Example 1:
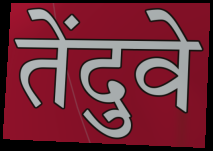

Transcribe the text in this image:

तेंदुवे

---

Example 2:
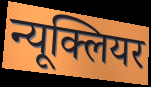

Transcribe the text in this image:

न्यूक्लियर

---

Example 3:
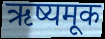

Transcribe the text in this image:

ऋष्यमूक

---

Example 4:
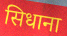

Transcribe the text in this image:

सिधाना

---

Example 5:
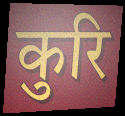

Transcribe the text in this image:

कुरि